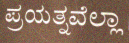
ಪ್ರಯತ್ನವೆಲ್ಲಾ